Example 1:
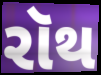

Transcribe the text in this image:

રૉથ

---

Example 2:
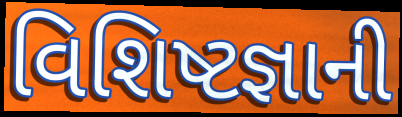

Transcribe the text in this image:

વિશિષ્ટજ્ઞાની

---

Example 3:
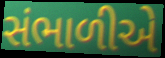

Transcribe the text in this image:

સંભાળીએ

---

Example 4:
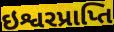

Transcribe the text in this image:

ઇશ્વરપ્રાપ્તિ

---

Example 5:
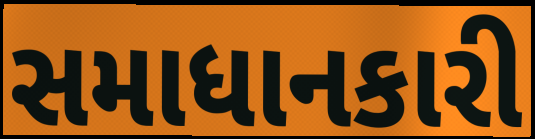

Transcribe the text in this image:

સમાધાનકારી